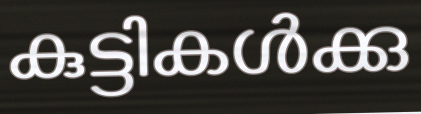
കുട്ടികൾക്കു